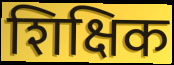
शिक्षिक